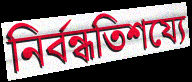
নির্বন্ধতিশয্যে